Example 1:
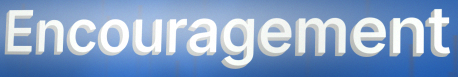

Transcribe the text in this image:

Encouragement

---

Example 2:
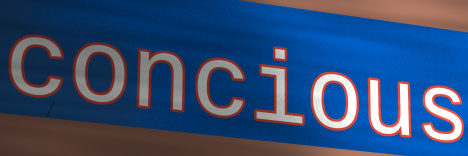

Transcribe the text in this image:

concious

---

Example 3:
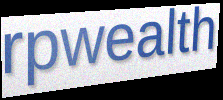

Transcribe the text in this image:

rpwealth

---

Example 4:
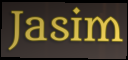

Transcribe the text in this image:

Jasim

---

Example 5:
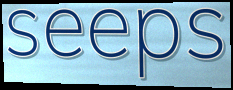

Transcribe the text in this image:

seeps